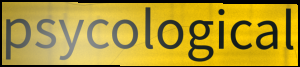
psycological